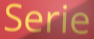
Serie